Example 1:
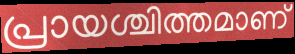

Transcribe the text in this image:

പ്രായശ്ചിത്തമാണ്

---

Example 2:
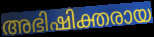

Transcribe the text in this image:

അഭിഷിക്തരായ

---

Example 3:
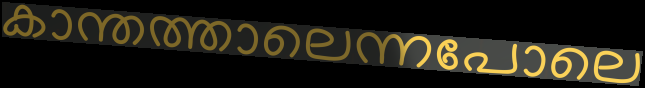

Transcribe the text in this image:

കാന്തത്താലെന്നപോലെ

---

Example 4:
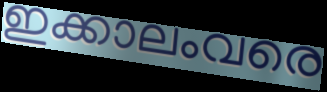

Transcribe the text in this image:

ഇക്കാലംവരെ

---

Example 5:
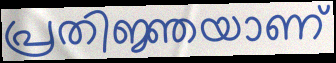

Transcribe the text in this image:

പ്രതിജ്ഞയാണ്